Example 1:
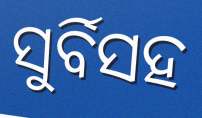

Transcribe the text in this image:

ସୁର୍ବିସହ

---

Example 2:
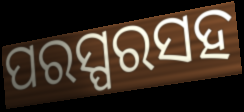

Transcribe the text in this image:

ପରସ୍ପରସହ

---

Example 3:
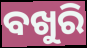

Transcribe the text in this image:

ବଖୁରି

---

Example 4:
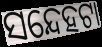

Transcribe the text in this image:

ସନ୍ଦେହଟା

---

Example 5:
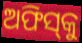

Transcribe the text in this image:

ଅଫିସ୍‌କୁ